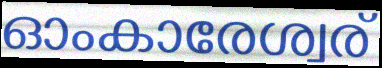
ഓംകാരേശ്വര്